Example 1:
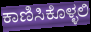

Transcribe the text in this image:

ಕಾಣಿಸಿಕೊಳ್ಳಲಿ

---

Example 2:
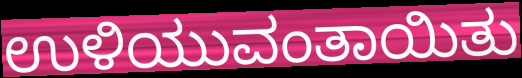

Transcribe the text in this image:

ಉಳಿಯುವಂತಾಯಿತು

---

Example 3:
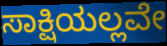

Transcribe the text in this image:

ಸಾಕ್ಷಿಯಲ್ಲವೇ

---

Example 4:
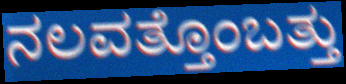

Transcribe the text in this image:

ನಲವತ್ತೊಂಬತ್ತು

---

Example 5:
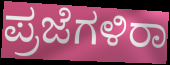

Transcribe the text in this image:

ಪ್ರಜೆಗಳಿರಾ